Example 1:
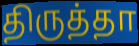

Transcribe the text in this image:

திருத்தா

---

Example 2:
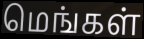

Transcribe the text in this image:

மெங்கள்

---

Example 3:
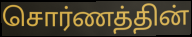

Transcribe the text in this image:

சொர்ணத்தின்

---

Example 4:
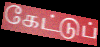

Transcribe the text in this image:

கேட்டுப்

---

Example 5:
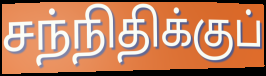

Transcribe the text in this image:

சந்நிதிக்குப்